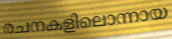
രചനകളിലൊന്നായ